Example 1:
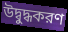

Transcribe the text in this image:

উদ্বুদ্ধকরণ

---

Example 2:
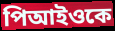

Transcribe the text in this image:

পিআইওকে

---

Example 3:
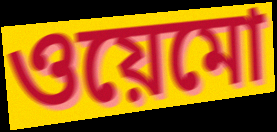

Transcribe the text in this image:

ওয়েমো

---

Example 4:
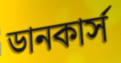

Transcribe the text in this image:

ডানকার্স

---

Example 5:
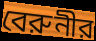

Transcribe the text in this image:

বেরুনীর